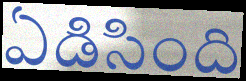
ఏడిసింది